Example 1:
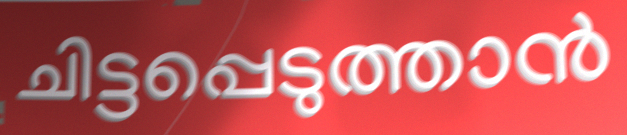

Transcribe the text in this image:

ചിട്ടപ്പെടുത്താൻ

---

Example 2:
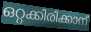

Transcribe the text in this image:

ഒറ്റക്കിരിക്കാന്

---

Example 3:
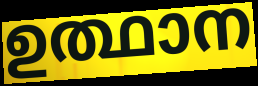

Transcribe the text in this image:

ഉത്ഥാന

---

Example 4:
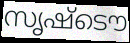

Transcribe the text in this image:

സൃഷ്ടൌ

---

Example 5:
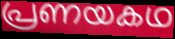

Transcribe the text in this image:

പ്രണയകഥ